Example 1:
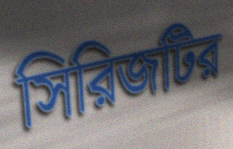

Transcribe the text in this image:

সিরিজটির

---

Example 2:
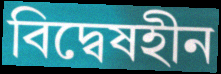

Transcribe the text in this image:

বিদ্বেষহীন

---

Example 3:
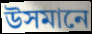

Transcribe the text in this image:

উসমানে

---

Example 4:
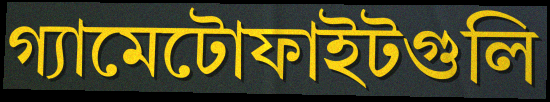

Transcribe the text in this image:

গ্যামেটোফাইটগুলি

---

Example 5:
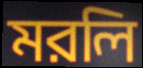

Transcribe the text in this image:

মরলি